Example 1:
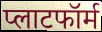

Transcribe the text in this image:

प्लाटफॉर्म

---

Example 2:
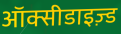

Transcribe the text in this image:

ऑक्सीडाइज़्ड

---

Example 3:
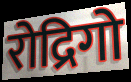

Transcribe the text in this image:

रोद्रिगो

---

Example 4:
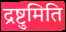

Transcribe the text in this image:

द्रष्टुमिति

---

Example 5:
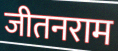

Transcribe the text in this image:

जीतनराम